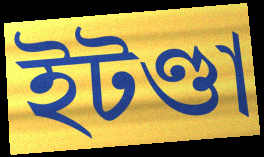
ইটণ্ডা